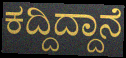
ಕದ್ದಿದ್ದಾನೆ